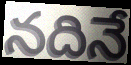
నదినే